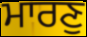
ਮਾਰਣੁ